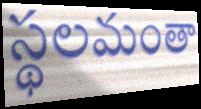
స్థలమంతా